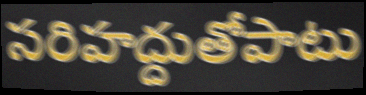
సరిహద్దుతోపాటు